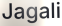
Jagali